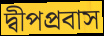
দ্বীপপ্রবাস